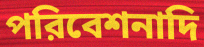
পরিবেশনাদি